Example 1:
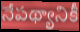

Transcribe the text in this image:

నేపథ్యానికీ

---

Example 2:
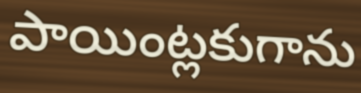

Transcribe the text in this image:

పాయింట్లకుగాను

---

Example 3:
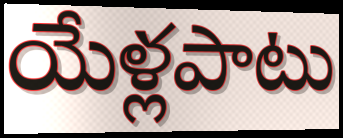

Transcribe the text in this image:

యేళ్లపాటు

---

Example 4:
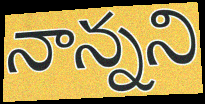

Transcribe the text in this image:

నాన్నని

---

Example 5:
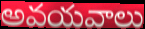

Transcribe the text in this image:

అవయవాలు